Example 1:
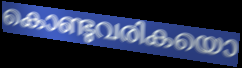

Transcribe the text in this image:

കൊണ്ടുവരികയൊ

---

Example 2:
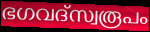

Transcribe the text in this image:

ഭഗവദ്സ്വരൂപം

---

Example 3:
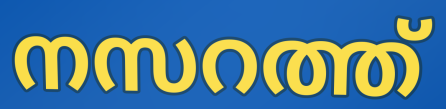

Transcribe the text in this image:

നസറത്ത്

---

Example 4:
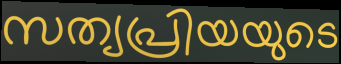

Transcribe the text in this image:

സത്യപ്രിയയുടെ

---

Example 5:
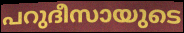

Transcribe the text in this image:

പറുദീസായുടെ